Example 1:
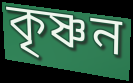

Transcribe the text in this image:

কৃষ্ণন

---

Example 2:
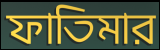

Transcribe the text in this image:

ফাতিমার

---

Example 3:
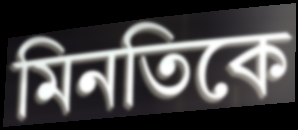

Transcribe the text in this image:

মিনতিকে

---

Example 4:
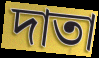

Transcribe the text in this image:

দাতা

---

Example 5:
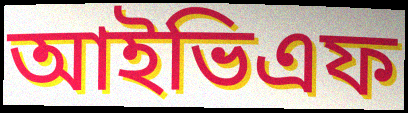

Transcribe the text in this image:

আইভিএফ